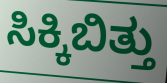
ಸಿಕ್ಕಿಬಿತ್ತು